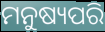
ମନୁଷ୍ୟପରି